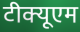
टीक्यूएम